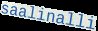
saalinalli